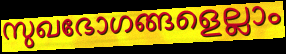
സുഖഭോഗങ്ങളെല്ലാം